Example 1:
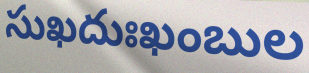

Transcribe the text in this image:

సుఖదుఃఖంబుల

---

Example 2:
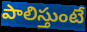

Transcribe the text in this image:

పాలిస్తుంటే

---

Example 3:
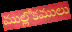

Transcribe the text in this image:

ముల్లోకములు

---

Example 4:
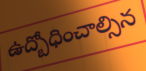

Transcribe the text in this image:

ఉద్బోధించాల్సిన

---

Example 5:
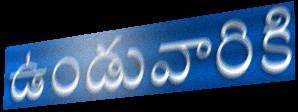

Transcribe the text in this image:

ఉండువారికి